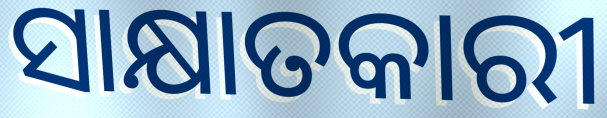
ସାକ୍ଷାତକାରୀ